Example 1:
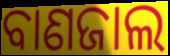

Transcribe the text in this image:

ବାଣଜାଲ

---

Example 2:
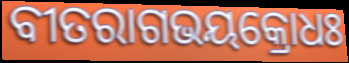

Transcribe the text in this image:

ବୀତରାଗଭୟକ୍ରୋଧଃ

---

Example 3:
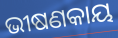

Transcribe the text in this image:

ଭୀଷଣକାୟ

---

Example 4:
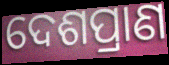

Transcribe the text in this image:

ଦେଶପ୍ରାଣ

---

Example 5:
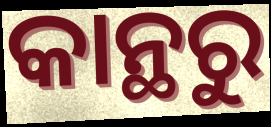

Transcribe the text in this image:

କାନ୍ଥରୁ